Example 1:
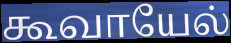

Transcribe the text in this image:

கூவாயேல்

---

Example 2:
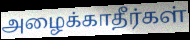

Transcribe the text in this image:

அழைக்காதீர்கள்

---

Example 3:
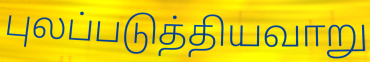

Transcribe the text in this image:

புலப்படுத்தியவாறு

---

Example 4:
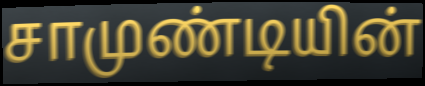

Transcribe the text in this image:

சாமுண்டியின்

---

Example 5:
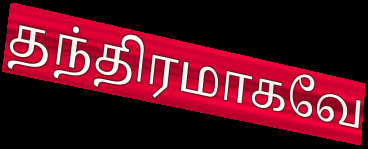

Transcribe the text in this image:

தந்திரமாகவே